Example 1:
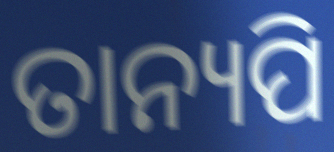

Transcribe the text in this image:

ତାନ୍ୟପି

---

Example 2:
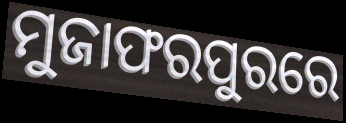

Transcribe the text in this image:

ମୁଜାଫରପୁରରେ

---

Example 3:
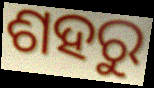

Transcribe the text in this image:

ଶହରୁ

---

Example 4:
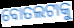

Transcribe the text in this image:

ବୋତଲଟାକୁ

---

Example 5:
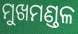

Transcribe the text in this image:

ମୁଖମଣ୍ଡଳ